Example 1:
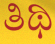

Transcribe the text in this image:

ತಿಥಿ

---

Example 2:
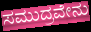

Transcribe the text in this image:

ಸಮುದ್ರವೇನು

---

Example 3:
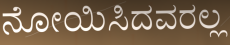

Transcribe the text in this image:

ನೋಯಿಸಿದವರಲ್ಲ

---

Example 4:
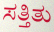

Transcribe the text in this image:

ಸತ್ತಿತು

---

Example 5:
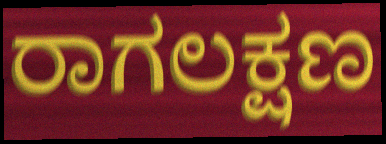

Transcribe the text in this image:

ರಾಗಲಕ್ಷಣ